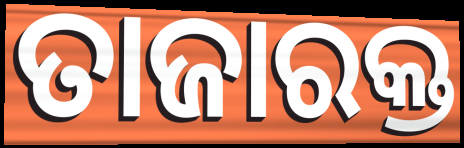
ତାଜାରକ୍ତ